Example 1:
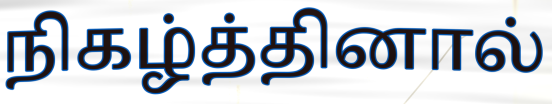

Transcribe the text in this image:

நிகழ்த்தினால்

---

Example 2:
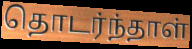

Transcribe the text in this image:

தொடர்ந்தாள்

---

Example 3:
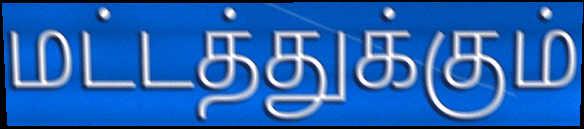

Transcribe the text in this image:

மட்டத்துக்கும்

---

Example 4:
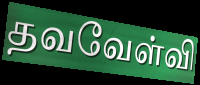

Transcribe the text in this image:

தவவேள்வி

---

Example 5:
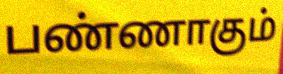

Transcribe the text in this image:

பண்ணாகும்